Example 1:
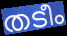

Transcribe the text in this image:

തടീം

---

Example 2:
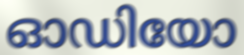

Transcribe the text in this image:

ഓഡിയോ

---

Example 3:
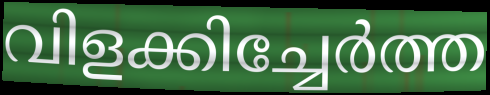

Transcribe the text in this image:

വിളക്കിച്ചേർത്ത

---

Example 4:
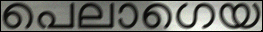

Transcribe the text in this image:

പെലാഗെയ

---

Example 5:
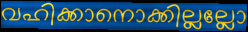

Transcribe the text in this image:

വഹിക്കാനൊക്കില്ലല്ലോ